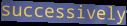
successively